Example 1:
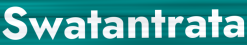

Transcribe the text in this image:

Swatantrata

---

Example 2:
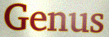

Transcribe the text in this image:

Genus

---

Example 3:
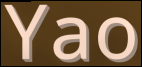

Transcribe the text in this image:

Yao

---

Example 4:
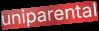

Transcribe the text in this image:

uniparental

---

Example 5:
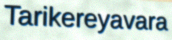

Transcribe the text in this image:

Tarikereyavara